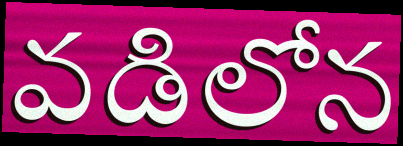
వడిలోన